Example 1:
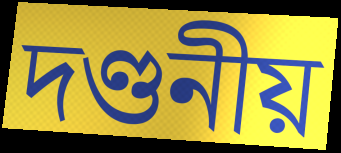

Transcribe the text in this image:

দণ্ডনীয়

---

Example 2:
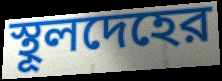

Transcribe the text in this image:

স্থূলদেহের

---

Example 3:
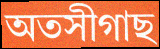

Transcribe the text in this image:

অতসীগাছ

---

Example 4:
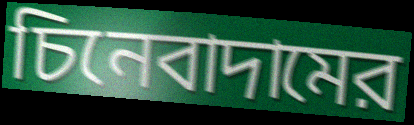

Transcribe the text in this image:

চিনেবাদামের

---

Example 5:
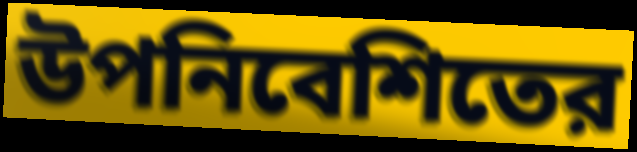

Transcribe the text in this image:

উপনিবেশিতের